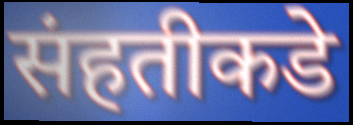
संहतीकडे